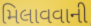
મિલાવવાની